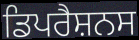
ਡਿਪਰੈਸ਼ਨਸ